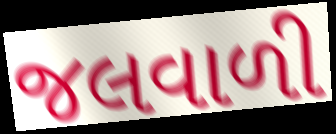
જલવાળી